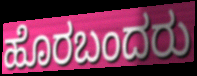
ಹೊರಬಂದರು